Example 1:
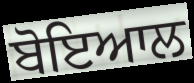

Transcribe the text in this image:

ਬੋਇਆਲ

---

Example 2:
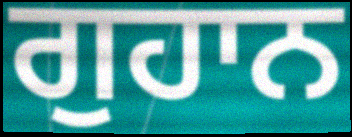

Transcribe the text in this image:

ਗੁਹਾਨ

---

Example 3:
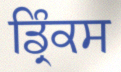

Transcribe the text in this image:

ਡ੍ਰਿੰਕਸ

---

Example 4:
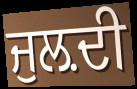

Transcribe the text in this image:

ਜੁਲ਼ਦੀ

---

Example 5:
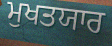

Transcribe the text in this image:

ਮੁਖਤਯਾਰ